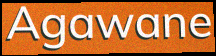
Agawane